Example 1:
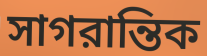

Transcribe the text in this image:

সাগরান্তিক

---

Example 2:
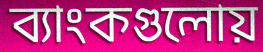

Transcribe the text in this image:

ব্যাংকগুলোয়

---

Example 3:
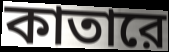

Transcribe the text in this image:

কাতারে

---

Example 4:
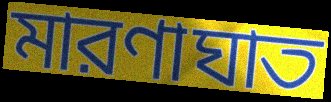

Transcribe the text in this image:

মারণাঘাত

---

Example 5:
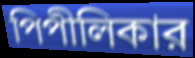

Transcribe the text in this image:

পিপীলিকার